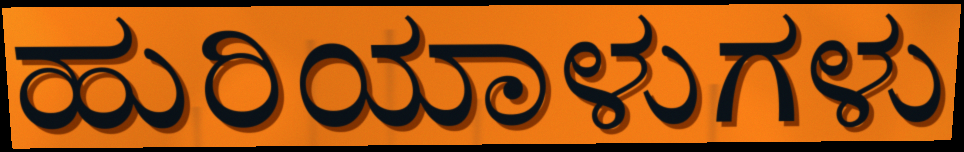
ಹುರಿಯಾಳುಗಳು